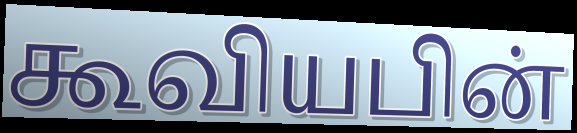
கூவியபின்